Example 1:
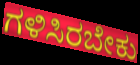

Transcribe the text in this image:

ಗಳಿಸಿರಬೇಕು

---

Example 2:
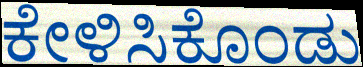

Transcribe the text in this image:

ಕೇಳಿಸಿಕೊಂಡು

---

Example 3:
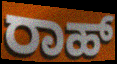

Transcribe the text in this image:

ರಾಹ್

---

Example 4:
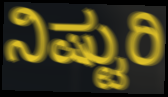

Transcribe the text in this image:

ನಿಷ್ಟುರಿ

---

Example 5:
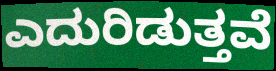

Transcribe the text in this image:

ಎದುರಿಡುತ್ತವೆ